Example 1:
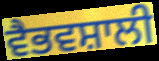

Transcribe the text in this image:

ਵੈਭਵਸ਼ਾਲੀ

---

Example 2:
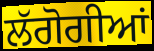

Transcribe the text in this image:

ਲੱਗੋਗੀਆਂ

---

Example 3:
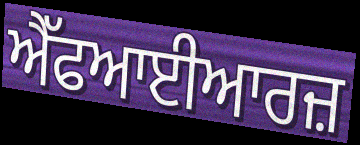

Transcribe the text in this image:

ਐੱਫਆਈਆਰਜ਼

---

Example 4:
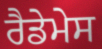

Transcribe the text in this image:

ਰੈਡੇਮੇਸ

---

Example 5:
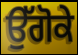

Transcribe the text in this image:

ਉੱਗੋਕੇ